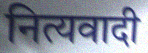
नित्यवादी